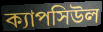
ক্যাপসিউল